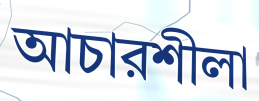
আচারশীলা